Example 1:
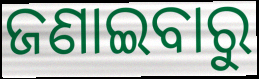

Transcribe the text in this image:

ଜଣାଇବାରୁ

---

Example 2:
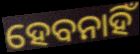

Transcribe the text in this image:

ହେବନାହିଁ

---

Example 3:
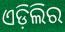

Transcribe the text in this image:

ଏଡ଼ିଲିର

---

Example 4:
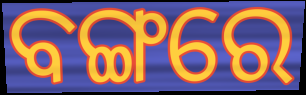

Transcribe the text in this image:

ବଙ୍ଗରେ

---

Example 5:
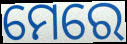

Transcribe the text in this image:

ମେରେ